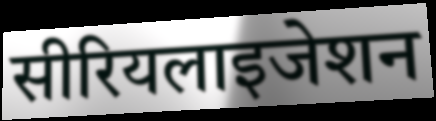
सीरियलाइजेशन